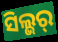
ସିଲ୍ଭର୍